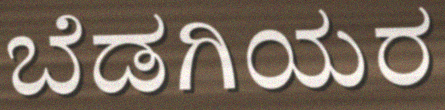
ಬೆಡಗಿಯರ